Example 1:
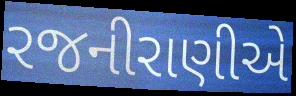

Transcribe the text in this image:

રજનીરાણીએ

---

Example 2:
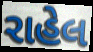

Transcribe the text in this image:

રાહેલ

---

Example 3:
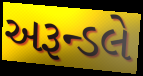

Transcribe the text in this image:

અરૂન્ડલે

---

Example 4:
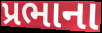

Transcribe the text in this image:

પ્રભાના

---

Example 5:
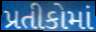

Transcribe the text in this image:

પ્રતીકોમાં